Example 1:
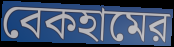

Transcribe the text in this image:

বেকহামের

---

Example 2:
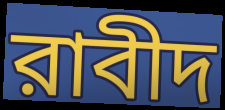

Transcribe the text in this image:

রাবীদ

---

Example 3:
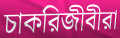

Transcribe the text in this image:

চাকরিজীবীরা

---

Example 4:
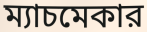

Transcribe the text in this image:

ম্যাচমেকার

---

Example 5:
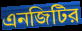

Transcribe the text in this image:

এনজিটির